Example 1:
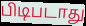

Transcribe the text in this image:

பிடிபடாது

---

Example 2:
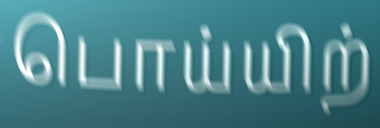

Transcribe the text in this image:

பொய்யிற்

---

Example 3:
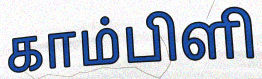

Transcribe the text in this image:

காம்பிளி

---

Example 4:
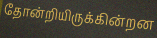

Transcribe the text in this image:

தோன்றியிருக்கின்றன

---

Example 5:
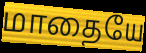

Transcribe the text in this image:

மாதையே